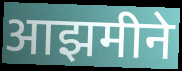
आझमीने